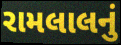
રામલાલનું